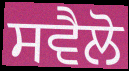
ਸਵੈਲੋ